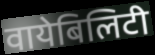
वायेबिलिटी